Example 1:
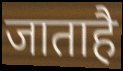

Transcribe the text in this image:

जाताहै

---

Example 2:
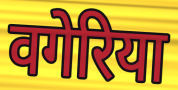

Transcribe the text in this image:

वगेरिया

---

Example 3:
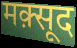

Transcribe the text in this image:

मक़्सूद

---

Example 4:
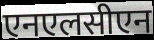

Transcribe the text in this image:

एनएलसीएन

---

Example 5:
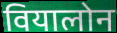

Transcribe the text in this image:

वियालोन